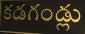
కడగండ్లు